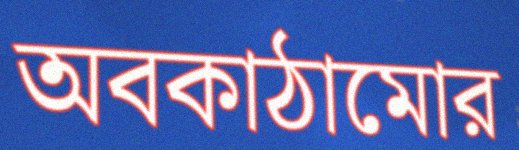
অবকাঠামোর